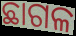
ଛାଗଳ